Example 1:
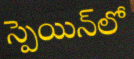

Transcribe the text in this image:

స్పెయిన్‌లో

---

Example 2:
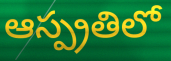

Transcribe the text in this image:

ఆస్ప్రతిలో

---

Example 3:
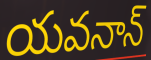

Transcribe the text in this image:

యవనాన్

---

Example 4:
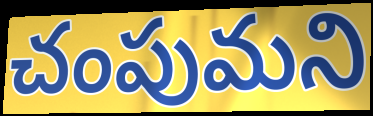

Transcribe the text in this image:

చంపుమని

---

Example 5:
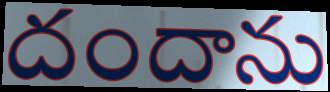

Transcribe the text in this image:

దందాను